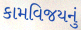
કામવિજયનું